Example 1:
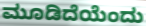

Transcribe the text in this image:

ಮೂಡಿದೆಯೆಂದು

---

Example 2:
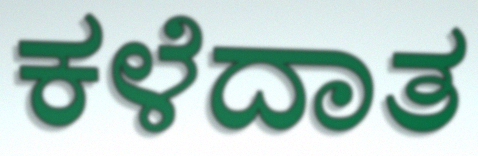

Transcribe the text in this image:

ಕಳೆದಾತ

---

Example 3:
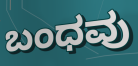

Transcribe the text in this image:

ಬಂಧವು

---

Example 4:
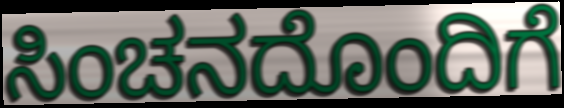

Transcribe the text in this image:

ಸಿಂಚನದೊಂದಿಗೆ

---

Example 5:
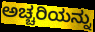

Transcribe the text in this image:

ಅಚ್ಚರಿಯನ್ನು